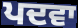
ਪਦਵਾ